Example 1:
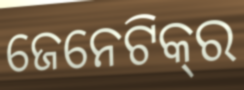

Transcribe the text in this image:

ଜେନେଟିକ୍‌ର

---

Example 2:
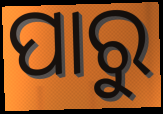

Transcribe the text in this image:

ପାରୁ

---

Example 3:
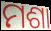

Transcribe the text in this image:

ମଶା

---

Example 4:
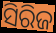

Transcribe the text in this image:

ସିରିଜ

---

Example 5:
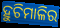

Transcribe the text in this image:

ହୁଚିମାଳିର